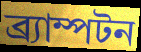
ব্র্যাম্পটন